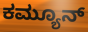
ಕಮ್ಯೂನ್